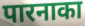
पारनाका